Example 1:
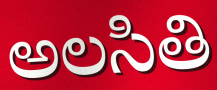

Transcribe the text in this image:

అలసితి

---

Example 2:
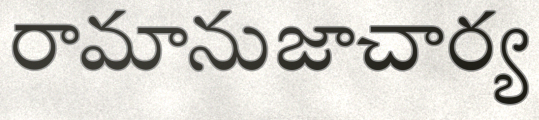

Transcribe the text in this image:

రామానుజాచార్య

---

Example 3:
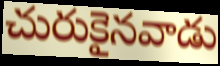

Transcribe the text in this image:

చురుకైనవాడు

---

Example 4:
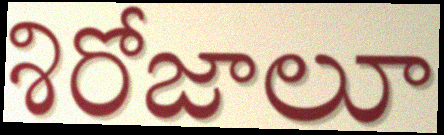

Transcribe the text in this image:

శిరోజాలూ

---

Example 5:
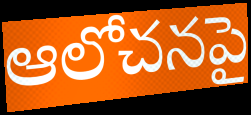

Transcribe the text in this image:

ఆలోచనపై